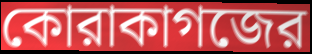
কোরাকাগজের